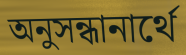
অনুসন্ধানার্থে